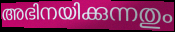
അഭിനയിക്കുന്നതും